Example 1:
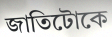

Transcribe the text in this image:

জাতিটোকে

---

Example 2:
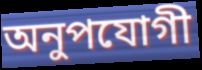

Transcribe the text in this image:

অনুপযোগী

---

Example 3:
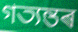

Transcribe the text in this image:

গত্যন্তৰ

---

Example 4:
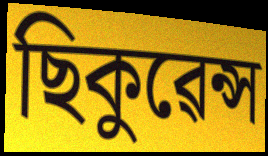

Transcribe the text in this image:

ছিকুৱেন্স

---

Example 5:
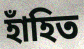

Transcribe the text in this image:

হাঁহিত